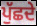
ਪੁੱਛਦੇ